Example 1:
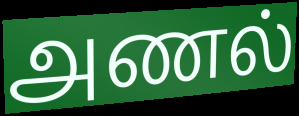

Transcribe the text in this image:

அணல்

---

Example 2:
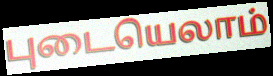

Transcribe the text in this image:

புடையெலாம்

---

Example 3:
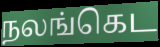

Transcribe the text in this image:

நலங்கெட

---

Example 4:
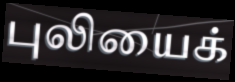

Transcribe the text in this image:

புலியைக்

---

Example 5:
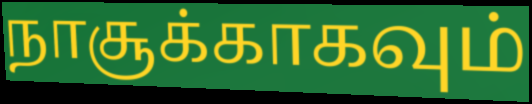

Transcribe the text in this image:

நாசூக்காகவும்